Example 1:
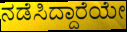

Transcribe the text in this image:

ನಡೆಸಿದ್ದಾರೆಯೇ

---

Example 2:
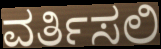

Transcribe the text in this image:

ವರ್ತಿಸಲಿ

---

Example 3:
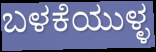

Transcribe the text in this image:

ಬಳಕೆಯುಳ್ಳ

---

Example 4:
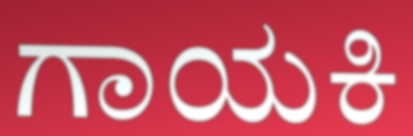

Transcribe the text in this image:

ಗಾಯಕಿ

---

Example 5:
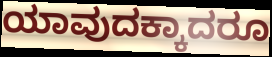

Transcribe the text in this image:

ಯಾವುದಕ್ಕಾದರೂ